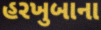
હરખુબાના